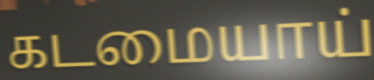
கடமையாய்